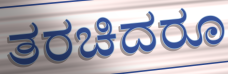
ತರಚಿದರೂ